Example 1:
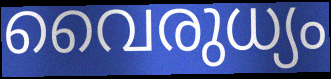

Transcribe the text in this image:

വൈരുധ്യം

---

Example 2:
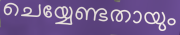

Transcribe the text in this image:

ചെയ്യേണ്ടതായും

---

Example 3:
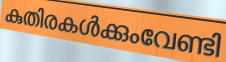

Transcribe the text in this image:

കുതിരകൾക്കുംവേണ്ടി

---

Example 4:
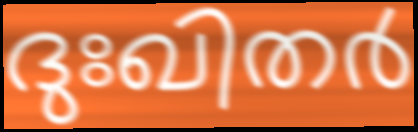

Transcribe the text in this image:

ദുഃഖിതർ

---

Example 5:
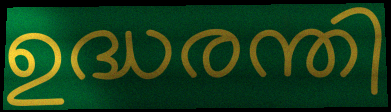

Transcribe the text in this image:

ഉദ്ധരന്തി